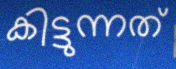
കിട്ടുന്നത്